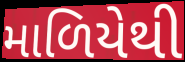
માળિયેથી